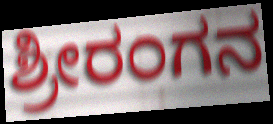
ಶ್ರೀರಂಗನ